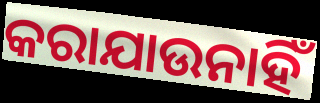
କରାଯାଉନାହିଁ